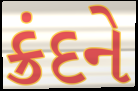
ક્રંદને